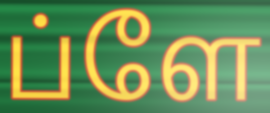
ப்ளே